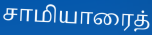
சாமியாரைத்